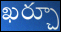
ఖర్చూ